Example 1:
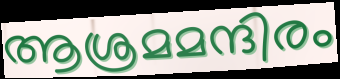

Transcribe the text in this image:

ആശ്രമമന്ദിരം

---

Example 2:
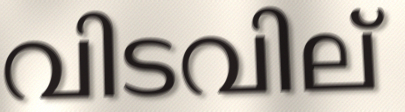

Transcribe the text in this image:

വിടവില്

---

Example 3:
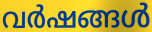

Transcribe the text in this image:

വർഷങ്ങൾ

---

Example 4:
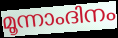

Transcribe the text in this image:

മൂന്നാംദിനം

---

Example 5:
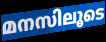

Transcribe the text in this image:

മനസിലൂടെ